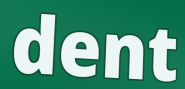
dent